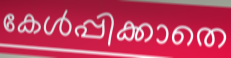
കേൾപ്പിക്കാതെ